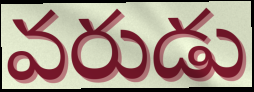
వరుడు